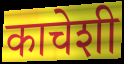
काचेशी